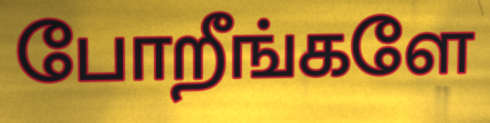
போறீங்களே